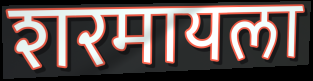
शरमायला